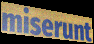
miserunt